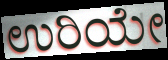
ಉರಿಯೇ